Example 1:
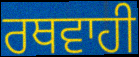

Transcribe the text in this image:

ਰਥਵਾਹੀ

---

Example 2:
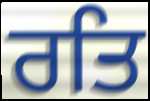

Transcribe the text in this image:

ਰਤਿ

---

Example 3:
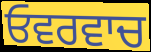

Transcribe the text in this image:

ਓਵਰਵਾਚ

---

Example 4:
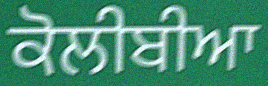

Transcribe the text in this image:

ਕੋਲੀਬੀਆ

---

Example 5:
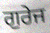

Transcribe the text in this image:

ਗੁਰੇਜ